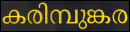
കരിമ്പുങ്കര